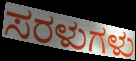
ಸರಳುಗಳು